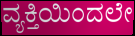
ವ್ಯಕ್ತಿಯಿಂದಲೇ